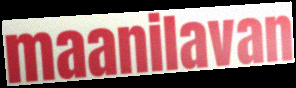
maanilavan